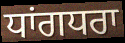
ਧਾਂਗਧਰਾ